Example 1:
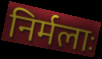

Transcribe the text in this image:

निर्मलाः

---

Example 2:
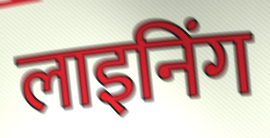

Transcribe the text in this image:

लाइनिंग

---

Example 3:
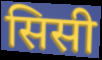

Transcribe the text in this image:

सिसी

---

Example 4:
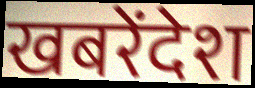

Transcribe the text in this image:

खबरेंदेश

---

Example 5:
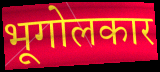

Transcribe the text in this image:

भूगोलकार